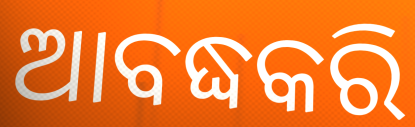
ଆବଦ୍ଧକରି